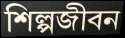
শিল্পজীবন